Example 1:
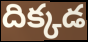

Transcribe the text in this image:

దిక్కడ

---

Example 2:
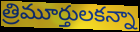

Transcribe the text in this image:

త్రిమూర్తులకన్నా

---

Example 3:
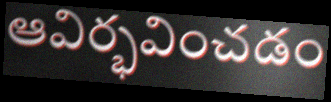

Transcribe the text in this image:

ఆవిర్భవించడం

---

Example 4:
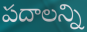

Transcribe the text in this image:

పదాలన్ని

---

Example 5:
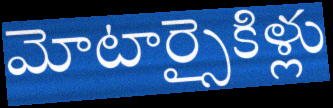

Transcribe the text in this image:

మోటార్సైకిళ్లు